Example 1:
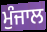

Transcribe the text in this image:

ਮੁੰਜਾਲ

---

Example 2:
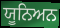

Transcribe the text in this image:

ਯੂਨਿਅਨ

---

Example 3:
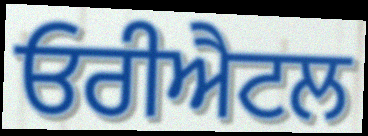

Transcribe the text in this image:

ਓਰੀਐਟਲ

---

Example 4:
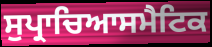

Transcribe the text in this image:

ਸੁਪ੍ਰਾਚਿਆਸਮੈਟਿਕ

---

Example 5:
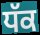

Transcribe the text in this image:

ਧੱਕ